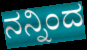
ನನ್ನಿಂದ